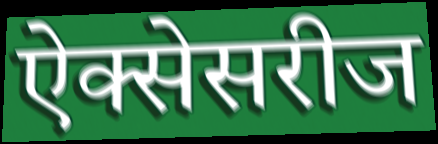
ऐक्सेसरीज